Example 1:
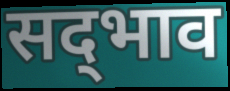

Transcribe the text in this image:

सद्‍भाव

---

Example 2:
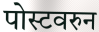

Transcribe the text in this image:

पोस्टवरुन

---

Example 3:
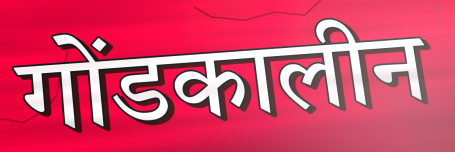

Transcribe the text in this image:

गोंडकालीन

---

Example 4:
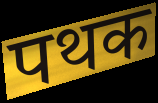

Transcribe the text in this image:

पथक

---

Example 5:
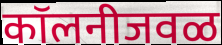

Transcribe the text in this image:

कॉलनीजवळ